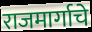
राजमार्गाचे